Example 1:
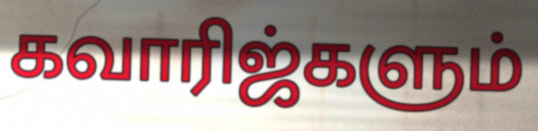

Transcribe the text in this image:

கவாரிஜ்களும்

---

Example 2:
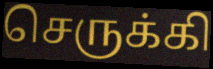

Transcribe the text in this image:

செருக்கி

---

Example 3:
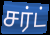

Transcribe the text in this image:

சர்ட்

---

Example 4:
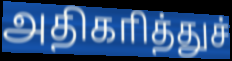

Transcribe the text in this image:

அதிகரித்துச்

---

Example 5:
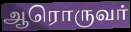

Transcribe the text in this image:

ஆரொருவர்